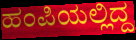
ಹಂಪಿಯಲ್ಲಿದ್ದ